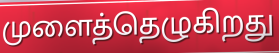
முளைத்தெழுகிறது